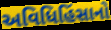
અવિધિહિંસાનો